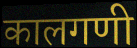
कालगणी